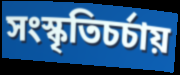
সংস্কৃতিচর্চায়